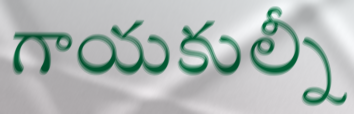
గాయకుల్నీ